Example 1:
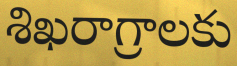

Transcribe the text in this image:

శిఖరాగ్రాలకు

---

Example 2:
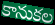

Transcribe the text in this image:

కానుకల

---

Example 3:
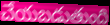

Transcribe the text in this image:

చేయబడుతుంది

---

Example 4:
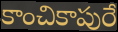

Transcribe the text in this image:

కాంచికాపురే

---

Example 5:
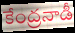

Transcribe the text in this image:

కేంద్రనాడీ